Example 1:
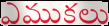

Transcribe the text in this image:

ఎముకలు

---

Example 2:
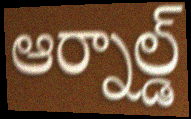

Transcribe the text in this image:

ఆర్నాల్డ్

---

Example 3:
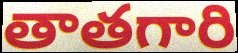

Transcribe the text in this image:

తాతగారి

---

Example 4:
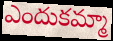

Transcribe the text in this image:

ఎందుకమ్మా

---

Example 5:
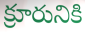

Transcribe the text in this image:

క్రూరునికి